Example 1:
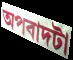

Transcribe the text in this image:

অপবাদটা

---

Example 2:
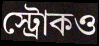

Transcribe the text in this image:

স্ট্রোকও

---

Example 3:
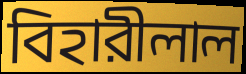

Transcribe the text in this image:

বিহারীলাল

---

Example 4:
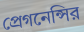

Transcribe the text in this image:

প্রেগনেন্সির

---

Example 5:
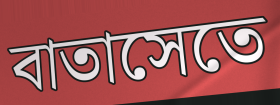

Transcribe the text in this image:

বাতাসেতে